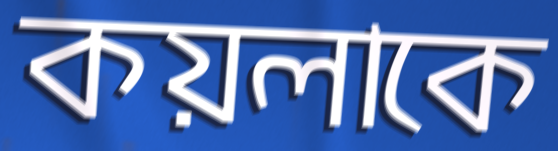
কয়লাকে